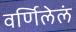
वर्णिलेलं